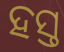
ହସ୍ତ